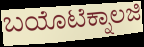
ಬಯೊಟೆಕ್ನಾಲಜಿ